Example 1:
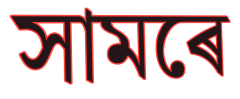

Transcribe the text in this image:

সামৰে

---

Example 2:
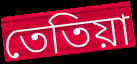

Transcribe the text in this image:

তেতিয়া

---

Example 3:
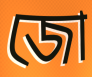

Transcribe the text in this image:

জো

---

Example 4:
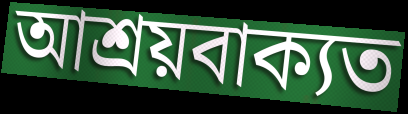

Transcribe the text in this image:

আশ্ৰয়বাক্যত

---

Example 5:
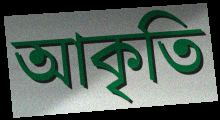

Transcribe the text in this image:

আকৃতি